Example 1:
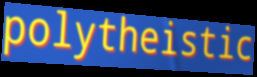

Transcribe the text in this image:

polytheistic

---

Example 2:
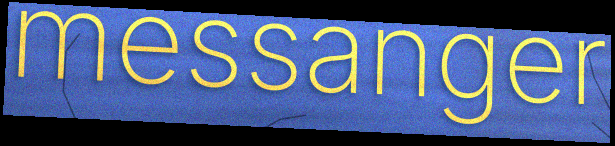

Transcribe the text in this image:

messanger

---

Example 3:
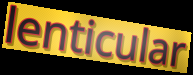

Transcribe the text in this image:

lenticular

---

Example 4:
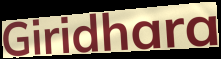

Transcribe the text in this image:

Giridhara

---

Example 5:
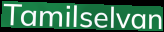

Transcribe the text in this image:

Tamilselvan